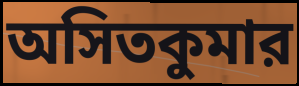
অসিতকুমার